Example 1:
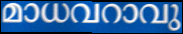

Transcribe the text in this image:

മാധവറാവു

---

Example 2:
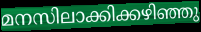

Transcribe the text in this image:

മനസിലാക്കിക്കഴിഞ്ഞു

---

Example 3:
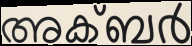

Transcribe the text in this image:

അക്ബർ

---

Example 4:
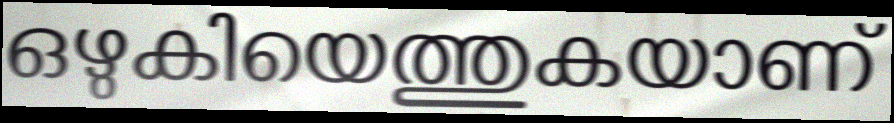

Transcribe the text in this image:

ഒഴുകിയെത്തുകയാണ്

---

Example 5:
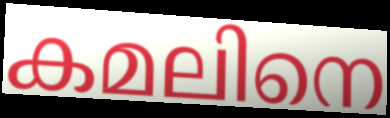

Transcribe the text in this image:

കമലിനെ